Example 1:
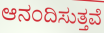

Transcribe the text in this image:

ಆನಂದಿಸುತ್ತವೆ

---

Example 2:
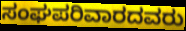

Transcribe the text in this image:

ಸಂಘಪರಿವಾರದವರು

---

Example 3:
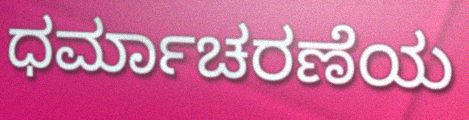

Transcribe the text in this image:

ಧರ್ಮಾಚರಣೆಯ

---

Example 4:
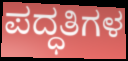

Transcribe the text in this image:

ಪದ್ಧತಿಗಳ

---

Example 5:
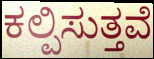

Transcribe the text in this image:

ಕಲ್ಪಿಸುತ್ತವೆ